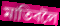
মাতিবলৈ